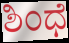
ಶಿಂಧೆ